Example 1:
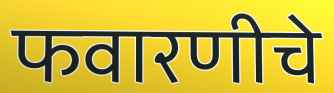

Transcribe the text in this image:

फवारणीचे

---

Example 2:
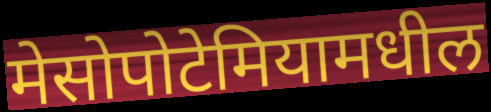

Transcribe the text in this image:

मेसोपोटेमियामधील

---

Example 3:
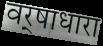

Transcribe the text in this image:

वर्षाधारा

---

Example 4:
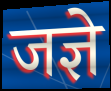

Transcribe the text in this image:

जज्ञे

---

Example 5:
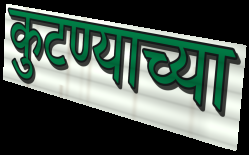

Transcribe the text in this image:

कुटण्याच्या